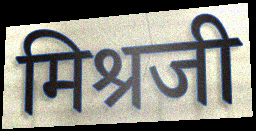
मिश्रजी